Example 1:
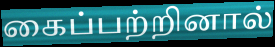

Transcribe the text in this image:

கைப்பற்றினால்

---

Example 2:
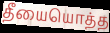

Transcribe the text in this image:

தீயையொத்த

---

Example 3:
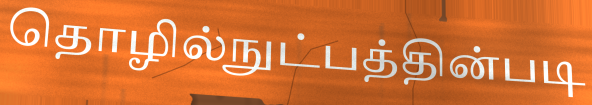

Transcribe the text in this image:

தொழில்நுட்பத்தின்படி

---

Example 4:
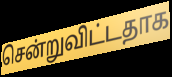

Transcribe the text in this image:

சென்றுவிட்டதாக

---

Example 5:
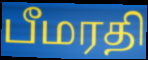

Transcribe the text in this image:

பீமரதி